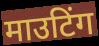
माउटिंग